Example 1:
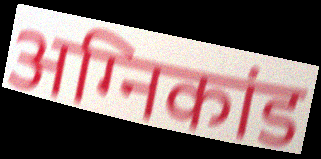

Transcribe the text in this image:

अग्‍निकांड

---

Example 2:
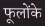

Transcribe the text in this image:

फूलोंके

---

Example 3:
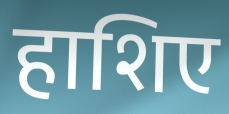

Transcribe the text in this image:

हाशिए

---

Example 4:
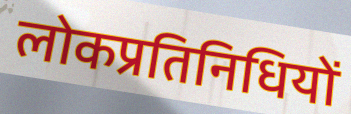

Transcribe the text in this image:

लोकप्रतिनिधियों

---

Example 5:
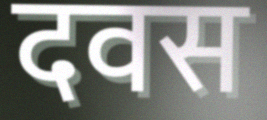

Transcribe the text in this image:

दवस